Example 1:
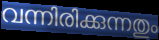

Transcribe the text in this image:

വന്നിരിക്കുന്നതും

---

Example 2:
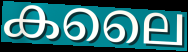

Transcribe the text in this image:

കലൈ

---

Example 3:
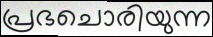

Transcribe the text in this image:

പ്രഭചൊരിയുന്ന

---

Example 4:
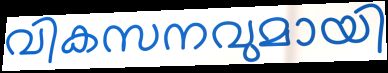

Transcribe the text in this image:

വികസനവുമായി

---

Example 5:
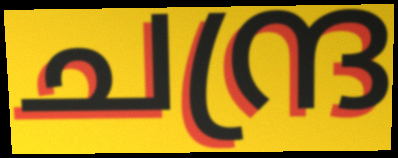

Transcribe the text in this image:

ചന്ദ്ര